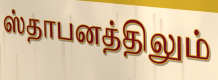
ஸ்தாபனத்திலும்